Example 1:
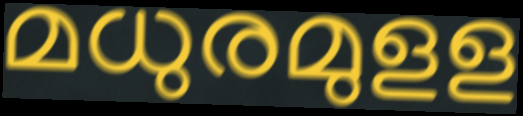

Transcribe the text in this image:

മധുരമുളള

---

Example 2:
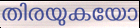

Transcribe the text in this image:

തിരയുകയോ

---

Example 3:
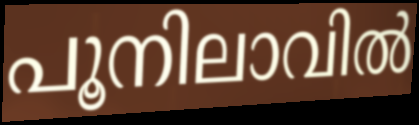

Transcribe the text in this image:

പൂനിലാവിൽ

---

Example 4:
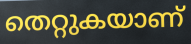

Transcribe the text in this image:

തെറ്റുകയാണ്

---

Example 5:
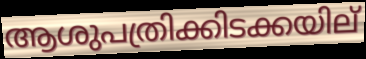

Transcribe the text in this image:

ആശുപത്രിക്കിടക്കയില്